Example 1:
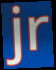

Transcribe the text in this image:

jr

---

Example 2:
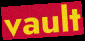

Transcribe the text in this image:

vault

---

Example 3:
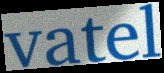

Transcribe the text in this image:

vatel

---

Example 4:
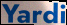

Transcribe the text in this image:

Yardi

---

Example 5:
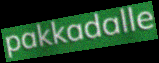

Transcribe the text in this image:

pakkadalle